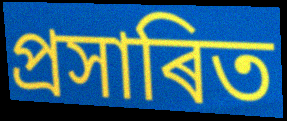
প্ৰসাৰিত